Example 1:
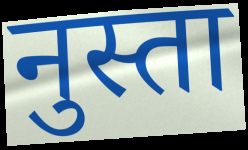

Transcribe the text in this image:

नुस्ता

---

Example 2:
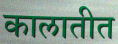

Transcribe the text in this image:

कालातीत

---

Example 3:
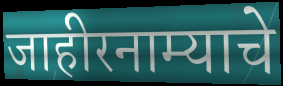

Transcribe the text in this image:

जाहीरनाम्याचे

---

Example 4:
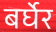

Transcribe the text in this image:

बर्घेर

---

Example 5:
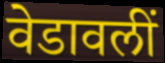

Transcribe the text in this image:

वेडावलीं